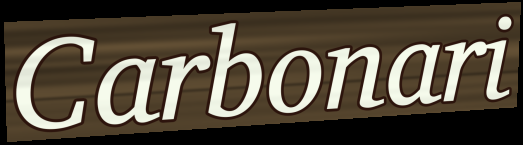
Carbonari